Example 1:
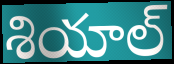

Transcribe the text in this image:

శియాల్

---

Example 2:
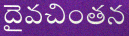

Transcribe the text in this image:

దైవచింతన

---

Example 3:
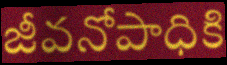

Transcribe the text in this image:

జీవనోపాధికి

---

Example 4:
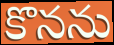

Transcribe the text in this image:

కొనను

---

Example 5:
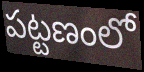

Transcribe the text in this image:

పట్టణంలో